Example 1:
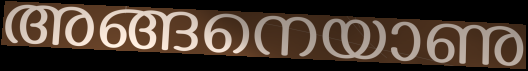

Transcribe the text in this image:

അങ്ങനെയാണു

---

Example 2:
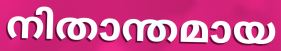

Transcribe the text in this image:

നിതാന്തമായ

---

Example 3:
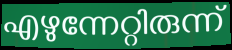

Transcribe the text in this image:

എഴുന്നേറ്റിരുന്ന്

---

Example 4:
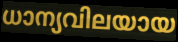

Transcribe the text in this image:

ധാന്യവിലയായ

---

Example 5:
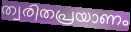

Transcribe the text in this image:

ത്വരിതപ്രയാണം